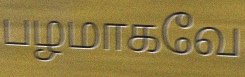
பழமாகவே